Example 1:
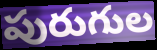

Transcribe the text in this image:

పురుగుల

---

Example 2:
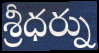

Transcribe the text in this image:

శ్రీధర్ను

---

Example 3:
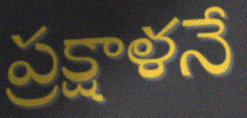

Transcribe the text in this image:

ప్రక్షాళనే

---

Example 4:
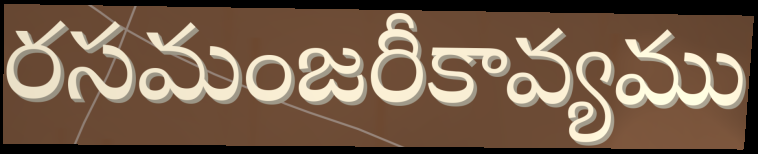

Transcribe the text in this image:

రసమంజరీకావ్యము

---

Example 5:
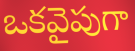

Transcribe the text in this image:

ఒకవైపుగా